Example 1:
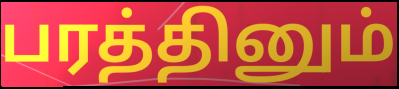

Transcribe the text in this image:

பரத்தினும்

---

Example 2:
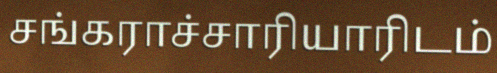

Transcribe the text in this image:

சங்கராச்சாரியாரிடம்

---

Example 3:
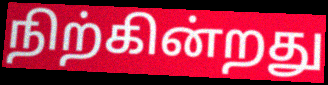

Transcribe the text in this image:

நிற்கின்றது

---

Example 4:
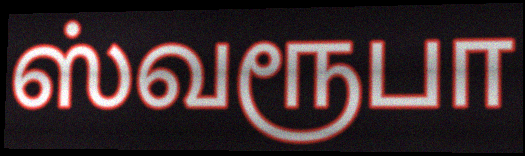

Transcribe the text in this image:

ஸ்வரூபா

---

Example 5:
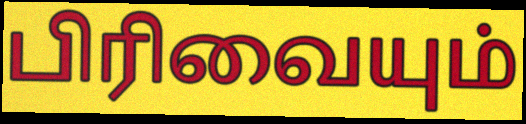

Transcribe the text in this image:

பிரிவையும்